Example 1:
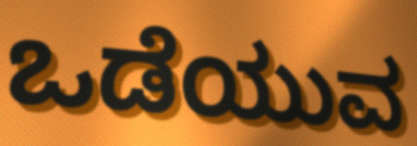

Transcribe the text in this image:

ಒಡೆಯುವ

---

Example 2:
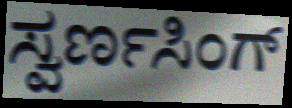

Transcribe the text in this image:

ಸ್ವರ್ಣಸಿಂಗ್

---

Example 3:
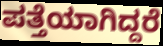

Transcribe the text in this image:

ಪತ್ತೆಯಾಗಿದ್ದರೆ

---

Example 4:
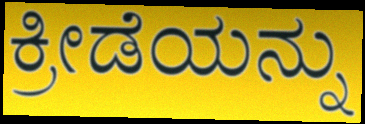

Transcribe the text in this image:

ಕ್ರೀಡೆಯನ್ನು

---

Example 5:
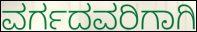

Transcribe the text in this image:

ವರ್ಗದವರಿಗಾಗಿ